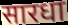
सारधा